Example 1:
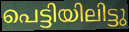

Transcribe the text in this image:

പെട്ടിയിലിട്ടു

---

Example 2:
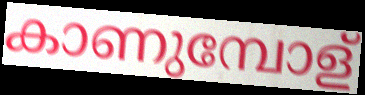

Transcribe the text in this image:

കാണുമ്പോള്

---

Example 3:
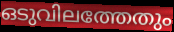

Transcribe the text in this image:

ഒടുവിലത്തേതും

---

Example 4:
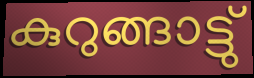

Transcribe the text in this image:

കുറുങ്ങാട്ടു്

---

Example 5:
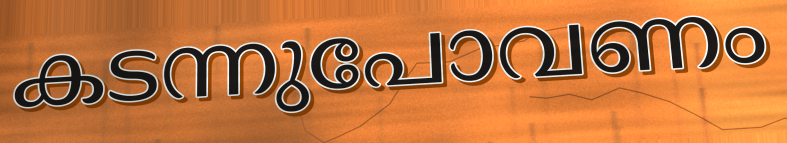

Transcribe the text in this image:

കടന്നുപോവണം